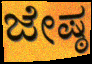
ಜೇಷ್ಠ